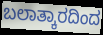
ಬಲಾತ್ಕಾರದಿಂದ